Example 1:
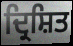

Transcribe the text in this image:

ਦ੍ਰਿਸ਼ਿਤ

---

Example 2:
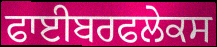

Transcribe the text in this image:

ਫਾਈਬਰਫਲੇਕਸ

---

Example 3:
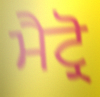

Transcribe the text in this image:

ਮੈਟ੍ਰੋ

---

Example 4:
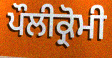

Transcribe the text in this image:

ਪੌਲੀਕ੍ਰੋਮੀ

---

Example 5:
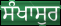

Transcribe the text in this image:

ਸੰਖਾਸੁਰ